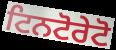
ਟਿਨਟੋਰੇਟੋ